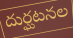
దుర్ఘటనల